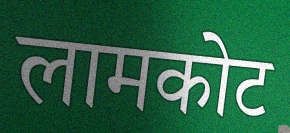
लामकोट